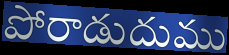
పోరాడుదుము